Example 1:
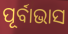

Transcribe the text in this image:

ପୂର୍ବାଭାସ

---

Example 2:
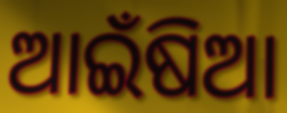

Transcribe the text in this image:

ଆଇଁଷିଆ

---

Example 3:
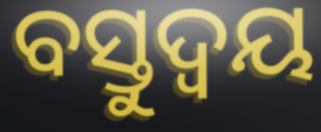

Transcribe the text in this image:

ବସ୍ତୁଦ୍ୱୟ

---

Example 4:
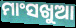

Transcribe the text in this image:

ମାଂସଖୁଆ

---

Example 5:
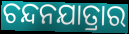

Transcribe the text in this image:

ଚନ୍ଦନଯାତ୍ରାର